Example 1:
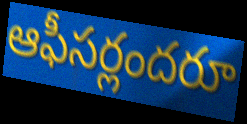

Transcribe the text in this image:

ఆఫీసర్లందరూ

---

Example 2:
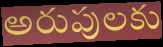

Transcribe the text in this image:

అరుపులకు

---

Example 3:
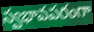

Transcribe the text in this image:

స్వభావపరంగా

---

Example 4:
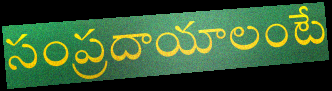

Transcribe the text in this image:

సంప్రదాయాలంటే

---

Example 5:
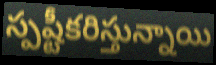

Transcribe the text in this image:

స్పష్టీకరిస్తున్నాయి